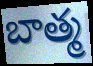
బాత్మ